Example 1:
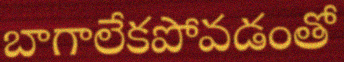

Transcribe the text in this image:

బాగాలేకపోవడంతో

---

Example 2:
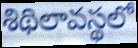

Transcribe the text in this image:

శిథిలావస్థలో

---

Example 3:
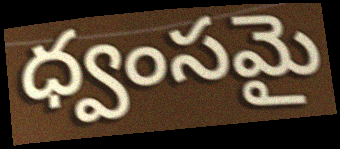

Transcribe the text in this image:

ధ్వంసమై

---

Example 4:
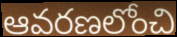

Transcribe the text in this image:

ఆవరణలోంచి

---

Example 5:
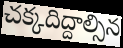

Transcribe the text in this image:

చక్కదిద్దాల్సిన